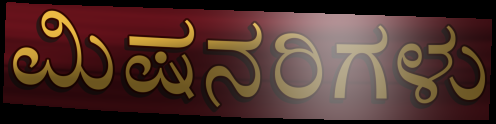
ಮಿಷನರಿಗಳು